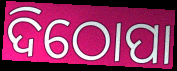
ଦିଠୋପା